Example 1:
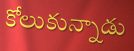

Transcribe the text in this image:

కోలుకున్నాడు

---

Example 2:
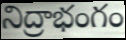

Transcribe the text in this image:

నిద్రాభంగం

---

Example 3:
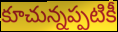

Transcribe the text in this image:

కూచున్నప్పటికీ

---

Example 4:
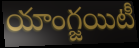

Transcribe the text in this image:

యాంగ్జయిటీ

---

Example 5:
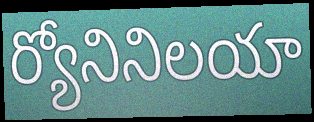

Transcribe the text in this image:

ర్యోనినిలయా